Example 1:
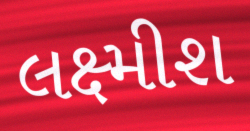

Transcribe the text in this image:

લક્ષ્મીશ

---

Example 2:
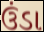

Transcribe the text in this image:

ઉંડા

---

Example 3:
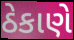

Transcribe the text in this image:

ઠેકાણે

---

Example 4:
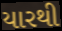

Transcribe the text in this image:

યારથી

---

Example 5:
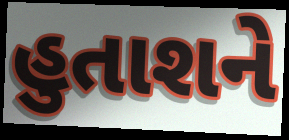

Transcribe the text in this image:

હુતાશને